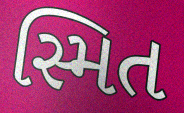
સ્મિત